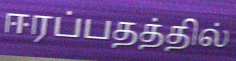
ஈரப்பதத்தில்